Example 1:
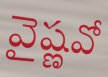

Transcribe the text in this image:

వైష్ణవో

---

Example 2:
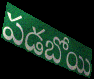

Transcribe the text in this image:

పడబోయి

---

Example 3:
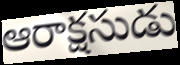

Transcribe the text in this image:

ఆరాక్షసుడు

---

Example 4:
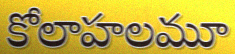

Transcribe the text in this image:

కోలాహలమూ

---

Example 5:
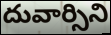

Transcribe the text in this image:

దువార్సిని